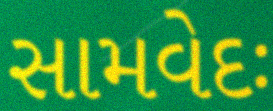
સામવેદઃ